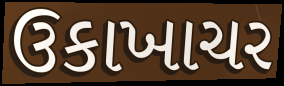
ઉકાખાચર